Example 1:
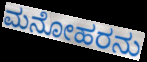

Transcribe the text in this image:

ಮನೋಹರನು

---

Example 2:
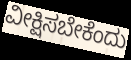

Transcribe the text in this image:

ವೀಕ್ಷಿಸಬೇಕೆಂದು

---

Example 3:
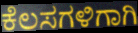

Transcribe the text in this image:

ಕೆಲಸಗಳಿಗಾಗಿ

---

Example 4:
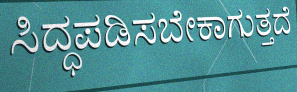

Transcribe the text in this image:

ಸಿದ್ಧಪಡಿಸಬೇಕಾಗುತ್ತದೆ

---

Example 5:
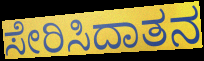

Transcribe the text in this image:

ಸೇರಿಸಿದಾತನ